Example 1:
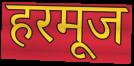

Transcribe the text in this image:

हरमूज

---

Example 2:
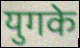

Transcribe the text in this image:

युगके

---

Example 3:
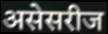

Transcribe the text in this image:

असेसरीज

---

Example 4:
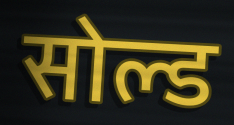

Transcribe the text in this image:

सोल्ड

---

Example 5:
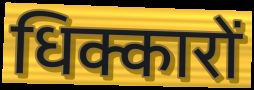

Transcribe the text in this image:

धिक्कारों